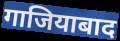
गाजियाबाद